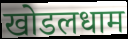
खोडलधाम